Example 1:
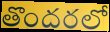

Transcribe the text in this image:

తొందరలో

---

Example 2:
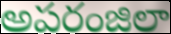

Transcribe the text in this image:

అపరంజిలా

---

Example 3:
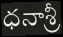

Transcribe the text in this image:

ధనాశ్రీ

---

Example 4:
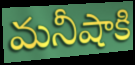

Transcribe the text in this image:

మనీషాకి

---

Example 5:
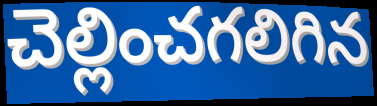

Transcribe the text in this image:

చెల్లించగలిగిన